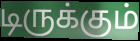
டிருக்கும்